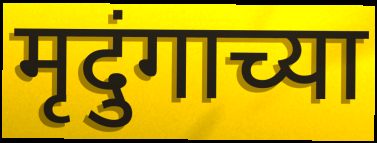
मृदुंगाच्या